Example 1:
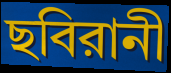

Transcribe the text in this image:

ছবিরানী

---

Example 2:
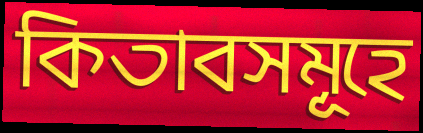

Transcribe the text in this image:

কিতাবসমূহে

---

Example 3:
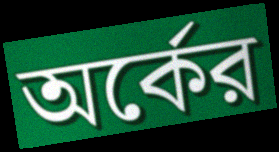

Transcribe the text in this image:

অর্কের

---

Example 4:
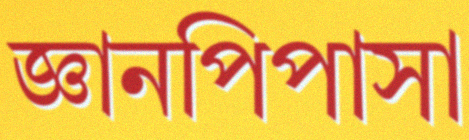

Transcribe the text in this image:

জ্ঞানপিপাসা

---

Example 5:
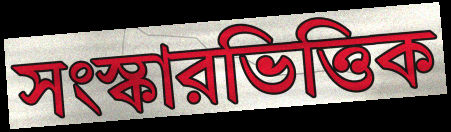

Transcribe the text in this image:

সংস্কারভিত্তিক